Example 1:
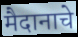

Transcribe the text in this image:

मैदानाचे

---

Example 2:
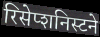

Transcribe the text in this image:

रिसेप्शनिस्टने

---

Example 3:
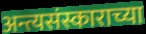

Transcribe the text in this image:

अन्त्यसंस्काराच्या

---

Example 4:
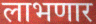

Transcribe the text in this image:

लाभणार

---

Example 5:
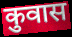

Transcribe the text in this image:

कुवास